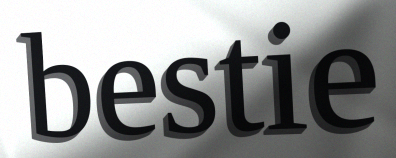
bestie